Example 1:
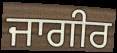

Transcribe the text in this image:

ਜਾਗੀਰ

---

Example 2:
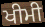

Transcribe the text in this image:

ਖੀਮੀ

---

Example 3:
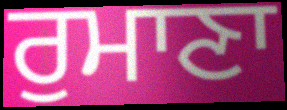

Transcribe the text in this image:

ਰੁਮਾਣਾ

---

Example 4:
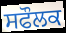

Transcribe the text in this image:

ਸਫੌਲਕ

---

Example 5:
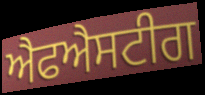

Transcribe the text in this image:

ਐਫਐਸਟੀਗ